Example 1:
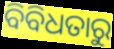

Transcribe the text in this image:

ବିବିଧତାରୁ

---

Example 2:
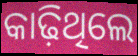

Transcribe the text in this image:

କାଢ଼ିଥିଲେ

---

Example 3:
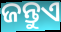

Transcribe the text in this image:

ଜନ୍ତୁଏ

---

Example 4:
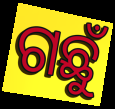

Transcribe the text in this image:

ଗଛୁଁ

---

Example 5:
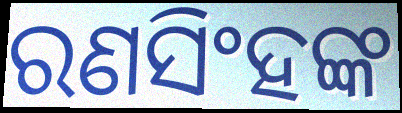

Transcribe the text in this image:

ରଣସିଂହଙ୍କ